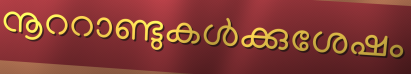
നൂററാണ്ടുകൾക്കുശേഷം